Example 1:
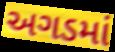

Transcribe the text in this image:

અગડમાં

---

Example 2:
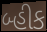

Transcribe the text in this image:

બ્હીક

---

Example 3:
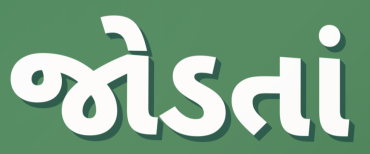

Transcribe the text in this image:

જોડતાં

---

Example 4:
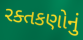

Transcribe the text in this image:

રક્તકણોનું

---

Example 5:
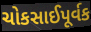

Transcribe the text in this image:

ચોકસાઈપૂર્વક